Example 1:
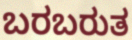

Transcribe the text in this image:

ಬರಬರುತ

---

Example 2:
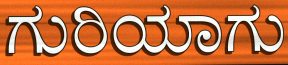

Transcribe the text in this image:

ಗುರಿಯಾಗು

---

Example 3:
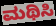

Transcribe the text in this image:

ಮಥಿಸಿ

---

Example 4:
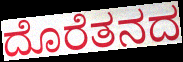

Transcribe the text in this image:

ದೊರೆತನದ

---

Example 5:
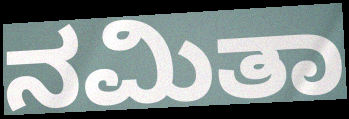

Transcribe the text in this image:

ನಮಿತಾ